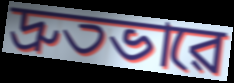
দ্ৰুতভাৱে